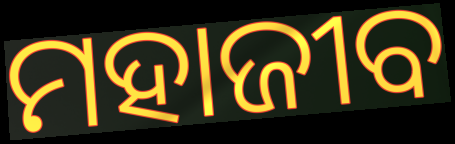
ମହାଜୀବ